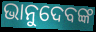
ଭାନୁଦେବଙ୍କ